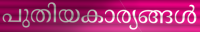
പുതിയകാര്യങ്ങൾ